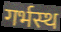
गर्भस्‍थ